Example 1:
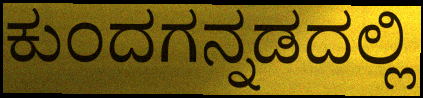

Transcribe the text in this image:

ಕುಂದಗನ್ನಡದಲ್ಲಿ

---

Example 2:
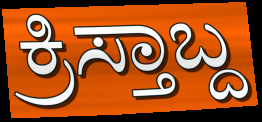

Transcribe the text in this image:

ಕ್ರಿಸ್ತಾಬ್ದ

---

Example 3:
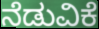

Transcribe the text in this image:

ನೆಡುವಿಕೆ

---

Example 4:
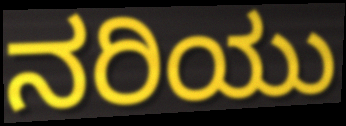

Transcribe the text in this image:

ನರಿಯು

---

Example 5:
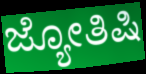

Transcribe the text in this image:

ಜ್ಯೋತಿಷಿ